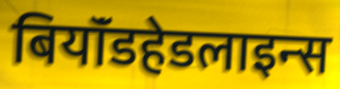
बियॉंडहेडलाइन्स